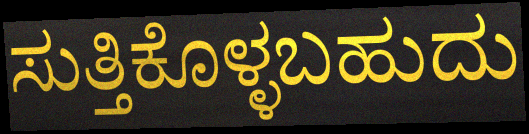
ಸುತ್ತಿಕೊಳ್ಳಬಹುದು